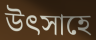
উত্‍সাহে